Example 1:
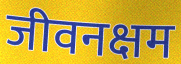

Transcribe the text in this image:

जीवनक्षम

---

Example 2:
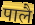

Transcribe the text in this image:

पालै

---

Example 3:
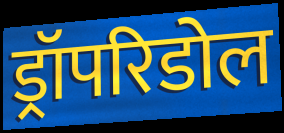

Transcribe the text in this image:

ड्रॉपरिडोल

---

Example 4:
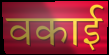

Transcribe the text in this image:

वकाई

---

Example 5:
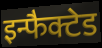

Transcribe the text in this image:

इन्फैक्टेड